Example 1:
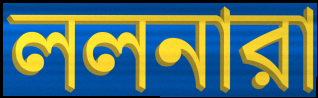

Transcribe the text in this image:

ললনারা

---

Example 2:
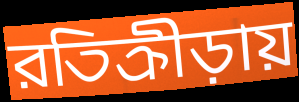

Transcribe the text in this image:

রতিক্রীড়ায়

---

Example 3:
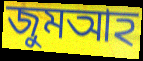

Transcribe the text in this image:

জুমআহ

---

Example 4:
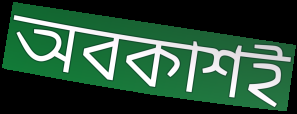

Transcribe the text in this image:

অবকাশই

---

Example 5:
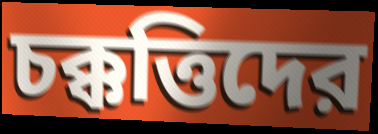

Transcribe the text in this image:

চক্কত্তিদের